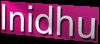
Inidhu